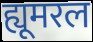
ह्यूमरल